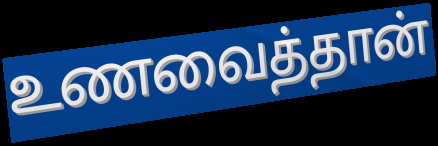
உணவைத்தான்